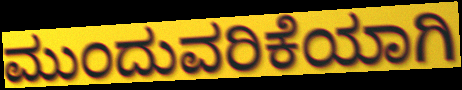
ಮುಂದುವರಿಕೆಯಾಗಿ